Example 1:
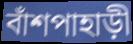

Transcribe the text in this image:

বাঁশপাহাড়ী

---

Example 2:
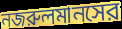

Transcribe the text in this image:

নজরুলমানসের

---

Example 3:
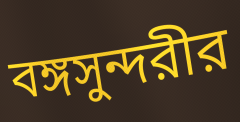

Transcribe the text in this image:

বঙ্গসুন্দরীর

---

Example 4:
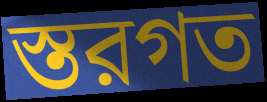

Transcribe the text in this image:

স্তরগত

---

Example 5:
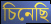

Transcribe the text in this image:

চিনেছি